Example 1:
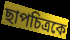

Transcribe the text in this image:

ছাপচিত্রকে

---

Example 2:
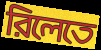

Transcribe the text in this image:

রিলেতে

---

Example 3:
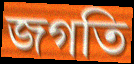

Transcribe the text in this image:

জগতি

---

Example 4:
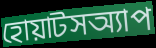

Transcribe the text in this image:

হোয়াটসঅ্যাপ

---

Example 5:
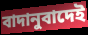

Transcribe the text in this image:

বাদানুবাদেই